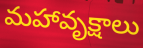
మహావృక్షాలు